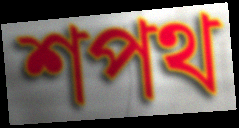
শপথ